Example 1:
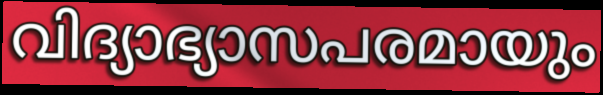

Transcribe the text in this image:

വിദ്യാഭ്യാസപരമായും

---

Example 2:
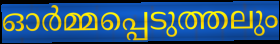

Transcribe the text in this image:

ഓർമ്മപ്പെടുത്തലും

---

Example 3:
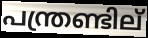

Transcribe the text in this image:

പന്ത്രണ്ടില്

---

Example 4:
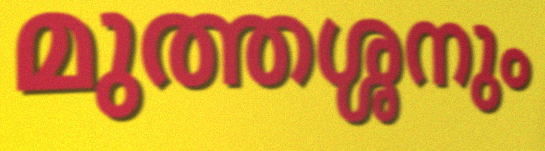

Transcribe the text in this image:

മുത്തശ്ശനും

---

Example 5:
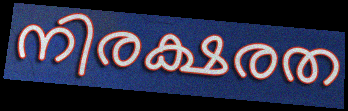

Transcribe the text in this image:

നിരക്ഷരത